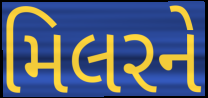
મિલરને